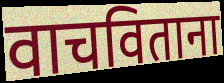
वाचविताना